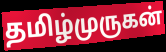
தமிழ்முருகன்